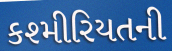
કશ્મીરિયતની